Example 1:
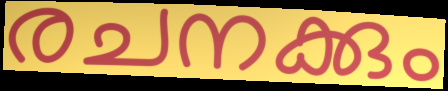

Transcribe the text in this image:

രചനക്കും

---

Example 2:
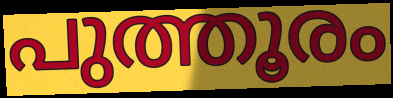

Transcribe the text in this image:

പുത്തൂരം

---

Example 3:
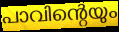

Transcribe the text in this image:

പാവിന്റെയും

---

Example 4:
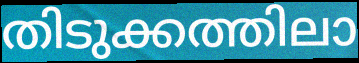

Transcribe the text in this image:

തിടുക്കത്തിലാ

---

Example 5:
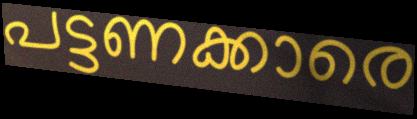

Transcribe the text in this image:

പട്ടണക്കാരെ